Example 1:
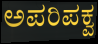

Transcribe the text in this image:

ಅಪರಿಪಕ್ವ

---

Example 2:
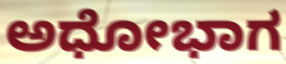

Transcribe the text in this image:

ಅಧೋಭಾಗ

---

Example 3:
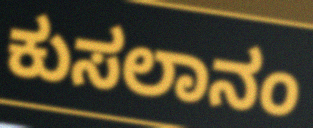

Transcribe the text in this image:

ಕುಸಲಾನಂ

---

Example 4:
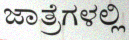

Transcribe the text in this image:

ಜಾತ್ರೆಗಳಲ್ಲಿ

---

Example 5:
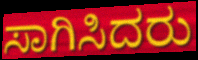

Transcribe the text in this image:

ಸಾಗಿಸಿದರು